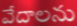
వేదాలను